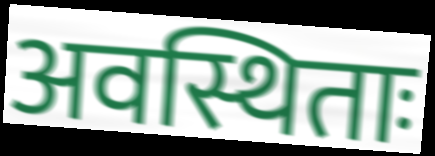
अवस्थिताः